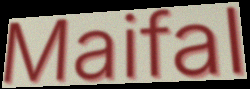
Maifal